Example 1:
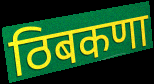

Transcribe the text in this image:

ठिबकणा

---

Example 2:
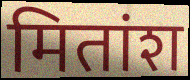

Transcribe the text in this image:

मितांश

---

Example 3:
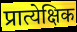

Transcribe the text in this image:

प्रात्येक्षिक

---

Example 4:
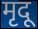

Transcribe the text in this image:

मृदू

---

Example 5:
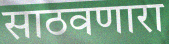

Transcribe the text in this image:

साठवणारा